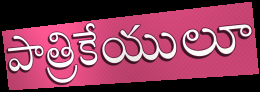
పాత్రికేయులూ